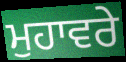
ਮੁਹਾਵਰੇ